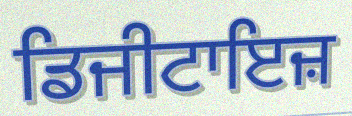
ਡਿਜੀਟਾਇਜ਼